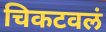
चिकटवलं